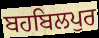
ਬਹਬਿਲਪੁਰ